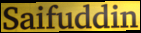
Saifuddin